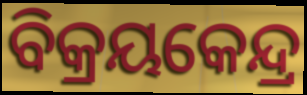
ବିକ୍ରୟକେନ୍ଦ୍ର